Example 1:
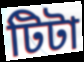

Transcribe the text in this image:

টিটা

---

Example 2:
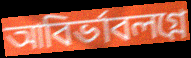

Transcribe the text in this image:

আবির্ভাবলগ্নে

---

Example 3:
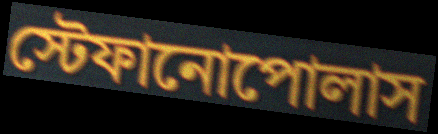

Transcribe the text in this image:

স্টেফানোপোলাস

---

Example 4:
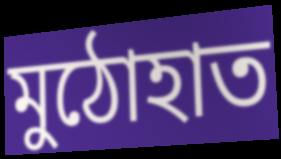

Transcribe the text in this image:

মুঠোহাত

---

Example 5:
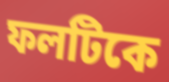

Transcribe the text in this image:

ফলটিকে